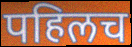
पहिलच